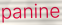
panine